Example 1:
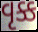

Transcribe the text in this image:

વૃક્ક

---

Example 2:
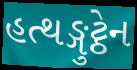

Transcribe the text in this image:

હત્થઙ્ગુટ્ઠેન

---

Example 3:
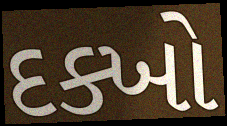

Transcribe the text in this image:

દક્ખો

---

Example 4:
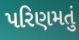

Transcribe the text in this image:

પરિણમતું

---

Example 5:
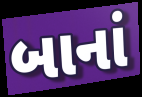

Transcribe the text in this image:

બાનાં